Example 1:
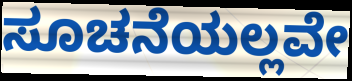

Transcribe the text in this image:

ಸೂಚನೆಯಲ್ಲವೇ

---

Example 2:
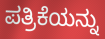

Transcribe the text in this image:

ಪತ್ರಿಕೆಯನ್ನು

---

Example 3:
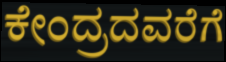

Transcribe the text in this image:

ಕೇಂದ್ರದವರೆಗೆ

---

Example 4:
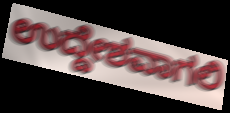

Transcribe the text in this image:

ಉದ್ದೇಶವಾಗಲಿ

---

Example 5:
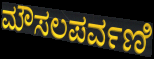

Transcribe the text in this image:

ಮೌಸಲಪರ್ವಣಿ